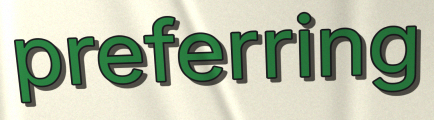
preferring